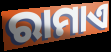
ରାମାଏ